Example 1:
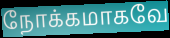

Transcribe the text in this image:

நோக்கமாகவே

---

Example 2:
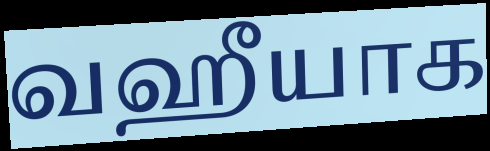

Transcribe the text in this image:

வஹீயாக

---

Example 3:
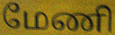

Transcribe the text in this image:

மேணி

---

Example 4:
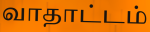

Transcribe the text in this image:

வாதாட்டம்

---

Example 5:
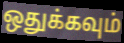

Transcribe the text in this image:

ஒதுக்கவும்